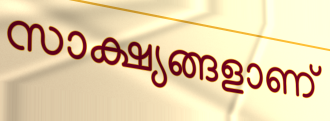
സാക്ഷ്യങ്ങളാണ്